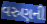
વરુણની